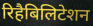
रिहैबिलिटेशन